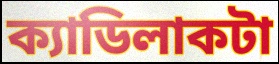
ক্যাডিলাকটা